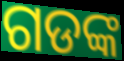
ଗଡଙ୍କ